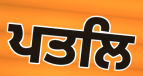
ਪਤਲਿ